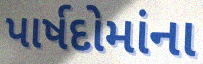
પાર્ષદોમાંના